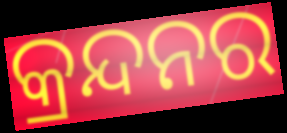
କ୍ରନ୍ଦନର